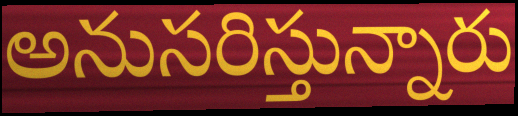
అనుసరిస్తున్నారు